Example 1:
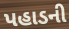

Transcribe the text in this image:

પહાડની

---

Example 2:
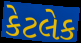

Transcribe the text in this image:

કેટલેક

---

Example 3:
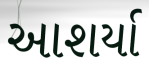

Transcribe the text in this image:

આશર્યા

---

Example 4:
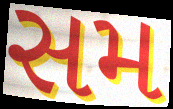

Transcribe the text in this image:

સમ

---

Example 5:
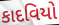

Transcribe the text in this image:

કાદવિયો